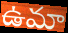
ఉమా